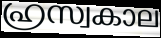
ഹ്രസ്വകാല